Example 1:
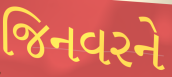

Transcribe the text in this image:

જિનવરને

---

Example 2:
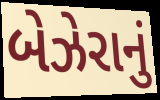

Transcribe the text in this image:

બેઝેરાનું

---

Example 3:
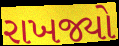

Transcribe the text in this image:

રાખજ્યો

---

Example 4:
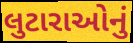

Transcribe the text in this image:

લુટારાઓનું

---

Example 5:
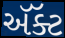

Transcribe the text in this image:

ઍૅક્ટ